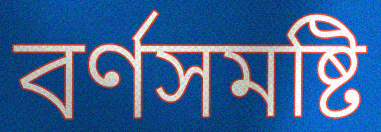
বর্ণসমষ্টি